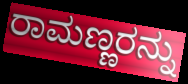
ರಾಮಣ್ಣರನ್ನು